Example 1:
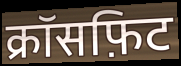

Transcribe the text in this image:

क्रॉसफ़िट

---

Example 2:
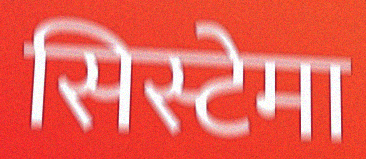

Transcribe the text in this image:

सिस्टेमा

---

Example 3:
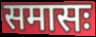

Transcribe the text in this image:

समासः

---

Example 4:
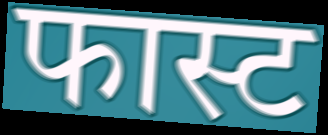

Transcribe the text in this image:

फास्ट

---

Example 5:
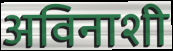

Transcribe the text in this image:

अविनाशी